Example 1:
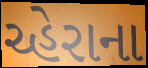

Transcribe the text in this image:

ચ્હેરાના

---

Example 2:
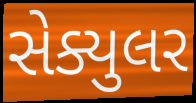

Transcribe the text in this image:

સેક્યુલર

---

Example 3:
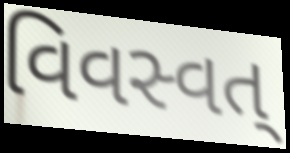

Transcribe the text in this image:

વિવસ્વત્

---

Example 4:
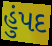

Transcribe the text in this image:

હુંપદ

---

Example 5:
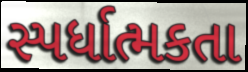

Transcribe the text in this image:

સ્પર્ધાત્મકતા